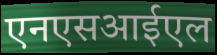
एनएसआईएल